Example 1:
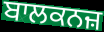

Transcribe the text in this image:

ਬਾਲਕਨਜ਼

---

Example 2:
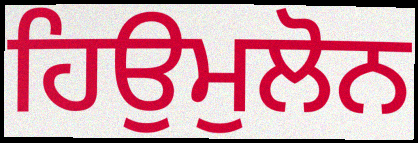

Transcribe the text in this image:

ਹਿਉਮੁਲੋਨ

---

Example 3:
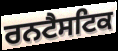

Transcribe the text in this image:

ਰਨਟੈਸਟਿਕ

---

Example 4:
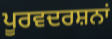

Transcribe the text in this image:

ਪੂਰਵਦਰਸ਼ਨਾਂ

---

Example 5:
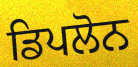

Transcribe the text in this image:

ਡਿਪਲੋਨ